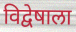
विद्वेषाला